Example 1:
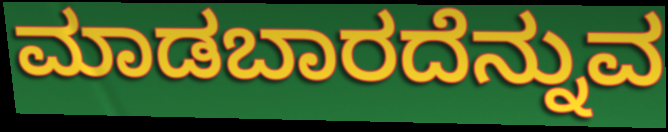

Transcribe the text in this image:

ಮಾಡಬಾರದೆನ್ನುವ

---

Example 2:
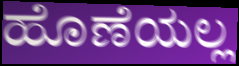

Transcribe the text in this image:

ಹೊಣೆಯಲ್ಲ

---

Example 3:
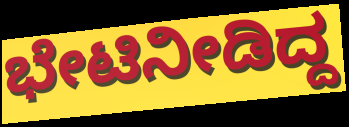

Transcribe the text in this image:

ಭೇಟಿನೀಡಿದ್ದ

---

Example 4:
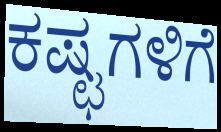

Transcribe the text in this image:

ಕಷ್ಟಗಳಿಗೆ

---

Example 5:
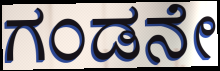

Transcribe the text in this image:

ಗಂಡನೇ